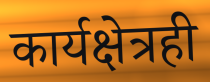
कार्यक्षेत्रही